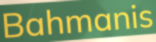
Bahmanis